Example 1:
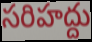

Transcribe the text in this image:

సరిహద్దు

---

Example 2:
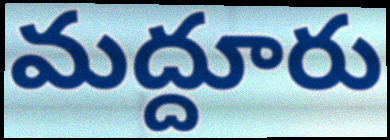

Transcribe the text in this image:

మద్దూరు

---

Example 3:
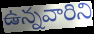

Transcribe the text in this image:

ఉన్నవారిని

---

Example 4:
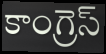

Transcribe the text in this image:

కాంగ్రెస్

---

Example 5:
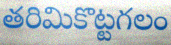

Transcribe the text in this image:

తరిమికొట్టగలం